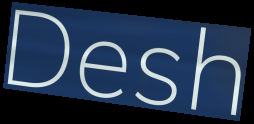
Desh